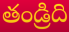
తండ్రిది